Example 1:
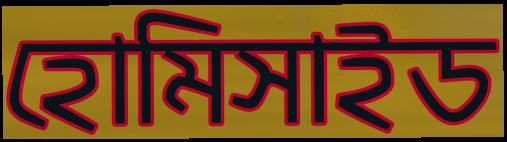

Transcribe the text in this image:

হোমিসাইড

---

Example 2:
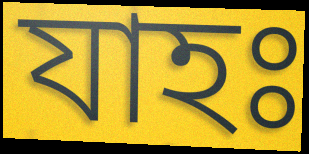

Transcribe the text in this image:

যাহঃ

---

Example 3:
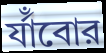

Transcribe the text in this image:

র্যাঁবোর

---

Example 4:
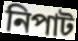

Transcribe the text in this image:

নিপাট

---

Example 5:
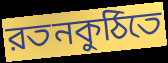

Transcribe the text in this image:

রতনকুঠিতে